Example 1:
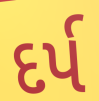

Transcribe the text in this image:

દર્પ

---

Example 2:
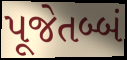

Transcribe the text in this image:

પૂજેતબ્બં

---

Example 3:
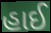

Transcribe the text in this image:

હાઈ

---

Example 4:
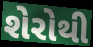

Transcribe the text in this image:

શેરોથી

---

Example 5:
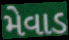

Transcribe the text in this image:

મેવાડ